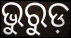
ଭୁରୁଡ଼